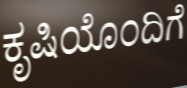
ಕೃಷಿಯೊಂದಿಗೆ